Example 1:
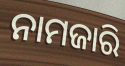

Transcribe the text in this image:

ନାମଜାରି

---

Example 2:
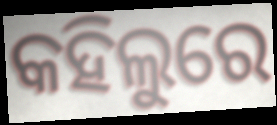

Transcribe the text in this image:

କହିଲୁରେ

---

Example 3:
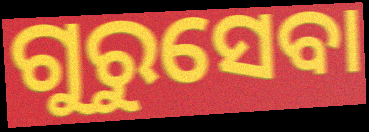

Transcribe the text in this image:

ଗୁରୁସେବା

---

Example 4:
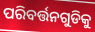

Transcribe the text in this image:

ପରିବର୍ତ୍ତନଗୁଡିକୁ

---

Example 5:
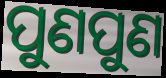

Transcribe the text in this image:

ପୁଣପୁଣ